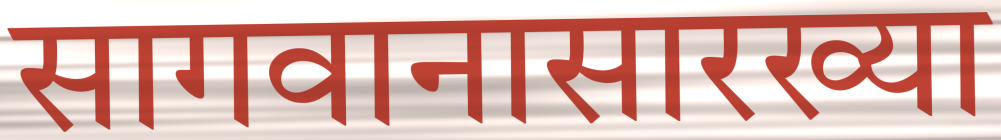
सागवानासारख्या